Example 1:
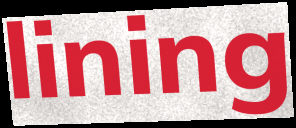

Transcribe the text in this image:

lining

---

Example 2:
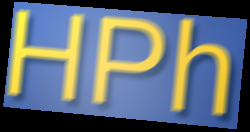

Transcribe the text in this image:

HPh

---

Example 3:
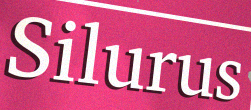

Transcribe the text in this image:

Silurus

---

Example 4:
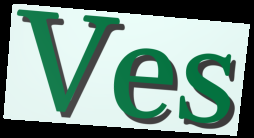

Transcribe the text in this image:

Ves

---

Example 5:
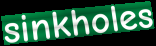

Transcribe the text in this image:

sinkholes